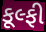
કૂલ્ફી